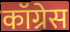
कॉग्रेस